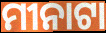
ମୀନାଟା